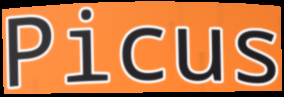
Picus